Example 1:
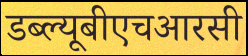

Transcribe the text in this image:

डब्ल्यूबीएचआरसी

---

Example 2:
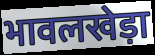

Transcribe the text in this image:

भावलखेड़ा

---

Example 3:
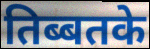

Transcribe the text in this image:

तिब्बतके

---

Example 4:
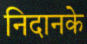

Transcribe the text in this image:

निदानके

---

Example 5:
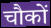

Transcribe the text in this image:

चौकों